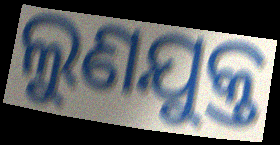
ଲୁଣଯୁକ୍ତ